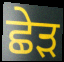
ਛੇੜ